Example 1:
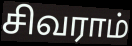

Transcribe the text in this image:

சிவராம்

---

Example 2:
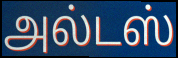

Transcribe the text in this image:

அல்டஸ்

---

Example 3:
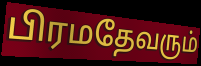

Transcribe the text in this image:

பிரமதேவரும்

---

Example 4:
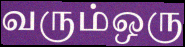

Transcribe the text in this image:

வரும்ஒரு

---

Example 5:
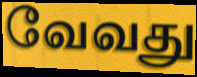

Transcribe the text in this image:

வேவது